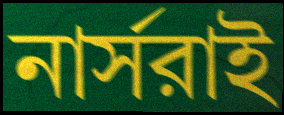
নার্সরাই